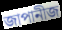
জাপানীজ